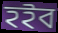
হইব